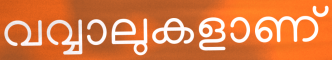
വവ്വാലുകളാണ്